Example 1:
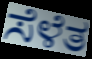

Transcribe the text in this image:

ಸೆಳೆತ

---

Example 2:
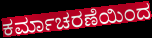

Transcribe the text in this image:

ಕರ್ಮಾಚರಣೆಯಿಂದ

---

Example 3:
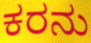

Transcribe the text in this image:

ಕರನು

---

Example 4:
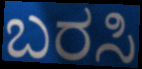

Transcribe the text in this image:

ಬರಸಿ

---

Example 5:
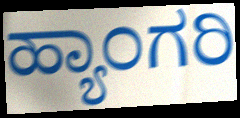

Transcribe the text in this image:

ಹ್ಯಾಂಗರಿ